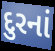
દુરનાં